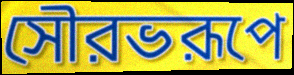
সৌরভরূপে